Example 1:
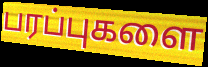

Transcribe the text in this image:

பரப்புகளை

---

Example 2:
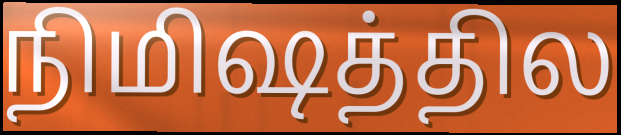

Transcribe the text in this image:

நிமிஷத்தில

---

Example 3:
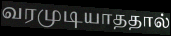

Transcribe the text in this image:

வரமுடியாததால்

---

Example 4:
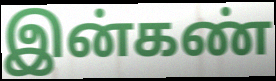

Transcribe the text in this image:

இன்கண்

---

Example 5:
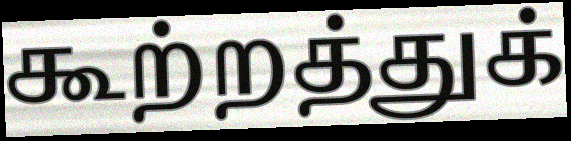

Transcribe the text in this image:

கூற்றத்துக்